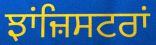
ਝਾਂਜ਼ਿਸਟਰਾਂ